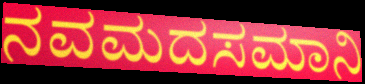
ನವಮದಸಮಾನಿ